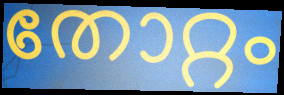
തോറ്റം